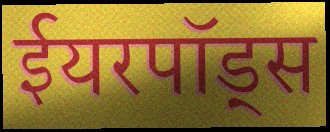
ईयरपॉड्स